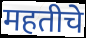
महतीचे